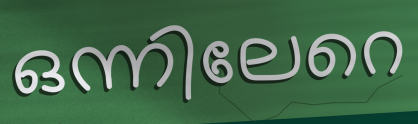
ഒന്നിലേറെ